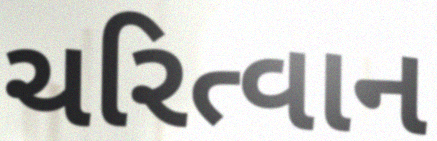
ચરિત્વાન